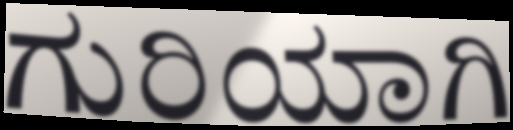
ಗುರಿಯಾಗಿ